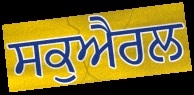
ਸਕੁਐਰਲ